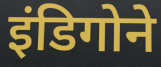
इंडिगोने